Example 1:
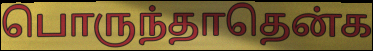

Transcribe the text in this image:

பொருந்தாதென்க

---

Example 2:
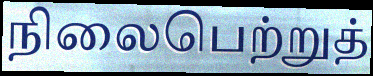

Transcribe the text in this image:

நிலைபெற்றுத்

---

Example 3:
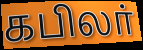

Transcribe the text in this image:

கபிலர்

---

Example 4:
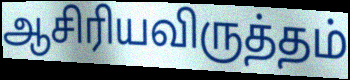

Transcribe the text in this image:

ஆசிரியவிருத்தம்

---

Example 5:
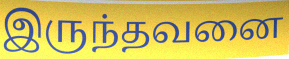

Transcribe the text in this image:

இருந்தவனை